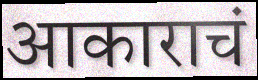
आकाराचं